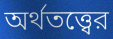
অর্থতত্ত্বের